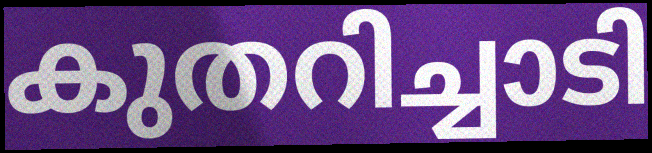
കുതറിച്ചാടി